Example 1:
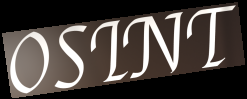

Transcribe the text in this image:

OSINT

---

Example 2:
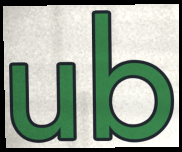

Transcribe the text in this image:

ub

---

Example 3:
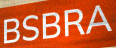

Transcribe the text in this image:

BSBRA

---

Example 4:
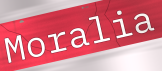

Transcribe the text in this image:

Moralia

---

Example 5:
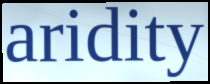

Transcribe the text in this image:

aridity